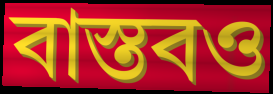
বাস্তবও